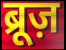
ब्रूज़